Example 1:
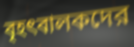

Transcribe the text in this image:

বৃহৎবালকদের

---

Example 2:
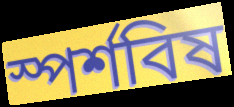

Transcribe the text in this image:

স্পর্শবিষ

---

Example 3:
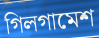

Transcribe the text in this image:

গিলগামেশ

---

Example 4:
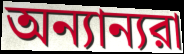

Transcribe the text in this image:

অন্যান্যরা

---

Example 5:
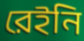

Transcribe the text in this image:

রেইনি